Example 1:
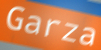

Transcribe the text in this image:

Garza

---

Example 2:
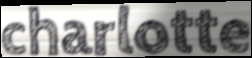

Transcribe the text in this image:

charlotte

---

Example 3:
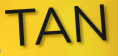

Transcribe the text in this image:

TAN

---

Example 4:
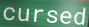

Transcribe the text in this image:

cursed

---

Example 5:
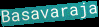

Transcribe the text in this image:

Basavaraja